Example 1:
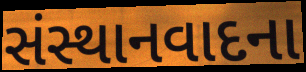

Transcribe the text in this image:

સંસ્થાનવાદના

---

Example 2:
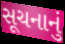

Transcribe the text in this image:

સૂચનાનું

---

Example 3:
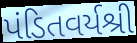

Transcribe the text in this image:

પંડિતવર્યશ્રી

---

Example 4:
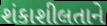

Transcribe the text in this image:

શંકાશીલતાને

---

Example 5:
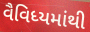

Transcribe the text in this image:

વૈવિધ્યમાંથી